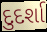
દુદર્શા